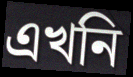
এখনি